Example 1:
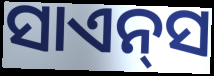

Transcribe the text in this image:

ସାଏନ୍‌ସ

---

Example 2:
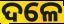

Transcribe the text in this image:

ଦଳେ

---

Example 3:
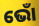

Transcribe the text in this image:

ଭୋଁ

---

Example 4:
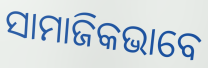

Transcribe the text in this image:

ସାମାଜିକଭାବେ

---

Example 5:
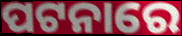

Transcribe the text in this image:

ପଟନାରେ